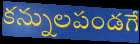
కన్నులపండగే